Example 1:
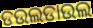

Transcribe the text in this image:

ଡଉଲଡାଉଲ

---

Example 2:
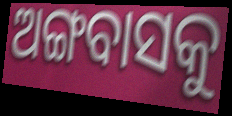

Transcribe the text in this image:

ଅଙ୍ଗବାସକୁ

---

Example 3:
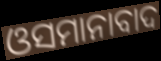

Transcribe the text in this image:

ଓସମାନାବାଦ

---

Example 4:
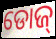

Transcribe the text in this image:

ଡୋଜ୍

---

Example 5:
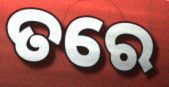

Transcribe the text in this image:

ତରେ